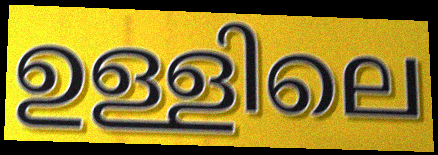
ഉള്ളിലെ